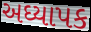
અઘ્યાપક